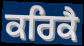
ਕਰਿਕੈ